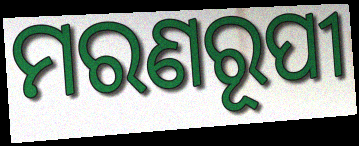
ମରଣରୂପୀ